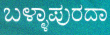
ಬಳ್ಳಾಪುರದಾ